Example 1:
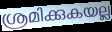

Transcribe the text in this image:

ശ്രമിക്കുകയല്ല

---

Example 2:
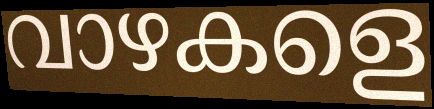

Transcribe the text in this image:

വാഴകളെ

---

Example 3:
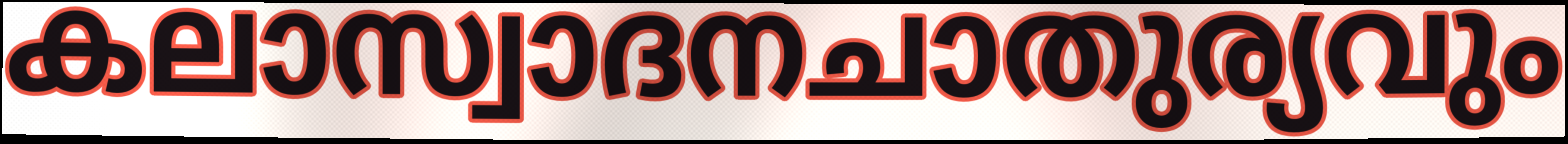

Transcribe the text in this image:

കലാസ്വാദനചാതുര്യവും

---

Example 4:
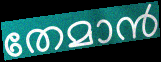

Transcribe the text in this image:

തേമാൻ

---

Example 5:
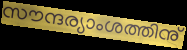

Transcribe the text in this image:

സൗന്ദര്യാംശത്തിനു്